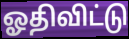
ஓதிவிட்டு